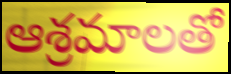
ఆశ్రమాలతో